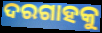
ଦରଗାହକୁ